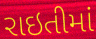
રાઇતીમાં